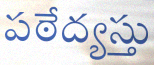
పఠేద్యస్తు